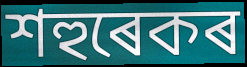
শহুৰেকৰ